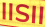
IISII